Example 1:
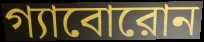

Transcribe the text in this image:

গ্যাবোরোন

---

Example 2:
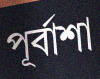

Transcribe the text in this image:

পূর্বাশা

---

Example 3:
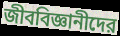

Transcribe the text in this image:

জীববিজ্ঞানীদের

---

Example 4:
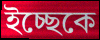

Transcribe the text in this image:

ইচ্ছেকে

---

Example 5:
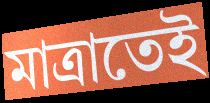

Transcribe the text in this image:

মাত্রাতেই